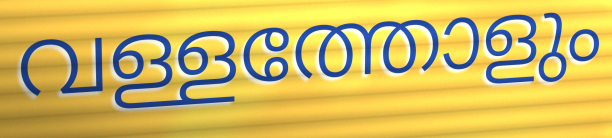
വള്ളത്തോളും